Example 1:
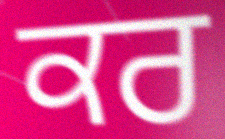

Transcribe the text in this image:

ਕਰ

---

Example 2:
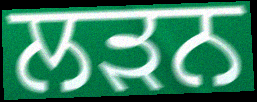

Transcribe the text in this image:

ਲਡ਼ਨ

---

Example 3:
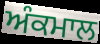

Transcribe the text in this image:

ਅੰਕਮਾਲ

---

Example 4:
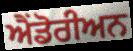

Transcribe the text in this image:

ਐਂਡੋਰੀਅਨ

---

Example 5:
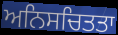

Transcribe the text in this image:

ਅਨਿਸਚਿਤਤਾ